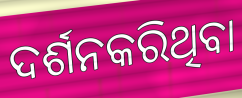
ଦର୍ଶନକରିଥିବା